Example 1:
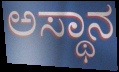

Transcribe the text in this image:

ಅಸ್ಥಾನ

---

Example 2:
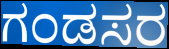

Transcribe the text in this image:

ಗಂಡಸರ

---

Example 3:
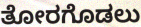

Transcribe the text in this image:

ತೋರಗೊಡಲು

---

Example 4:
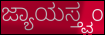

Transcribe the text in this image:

ಜ್ಯಾಯಸ್ತ್ವಂ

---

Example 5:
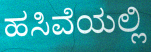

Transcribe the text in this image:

ಹಸಿವೆಯಲ್ಲಿ